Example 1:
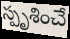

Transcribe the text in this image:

స్పృశించే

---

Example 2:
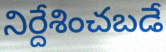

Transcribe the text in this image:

నిర్దేశించబడే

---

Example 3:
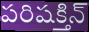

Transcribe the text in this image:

పరిషక్తిన్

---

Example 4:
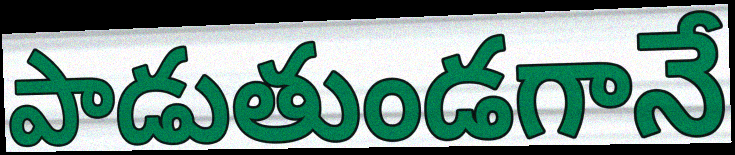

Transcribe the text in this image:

పాడుతుండగానే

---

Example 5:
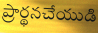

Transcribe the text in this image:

ప్రార్థనచేయుడి